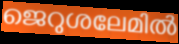
ജെറുശലേമിൽ